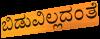
ಬಿಡುವಿಲ್ಲದಂತೆ